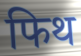
फिथ